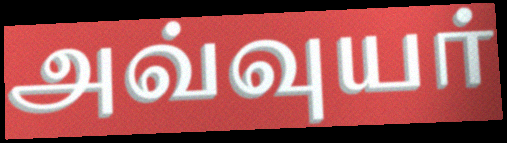
அவ்வுயர்